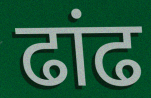
ढांढ